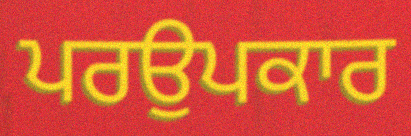
ਪਰਉਪਕਾਰ